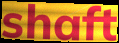
shaft